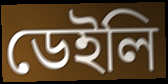
ডেইলি